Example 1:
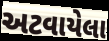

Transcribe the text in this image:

અટવાયેલા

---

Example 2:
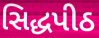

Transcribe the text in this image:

સિદ્ધપીઠ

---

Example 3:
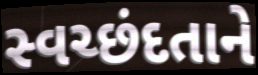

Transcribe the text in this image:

સ્વચ્છંદતાને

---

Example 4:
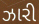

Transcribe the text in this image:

ઝારી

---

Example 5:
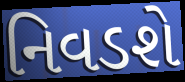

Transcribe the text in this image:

નિવડશે